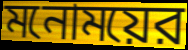
মনোময়ের